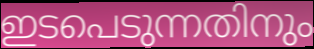
ഇടപെടുന്നതിനും